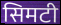
सिमटी